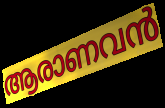
ആരാണവൻ